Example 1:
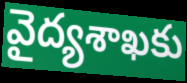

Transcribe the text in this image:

వైద్యశాఖకు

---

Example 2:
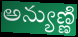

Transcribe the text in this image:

అన్యుణ్ణి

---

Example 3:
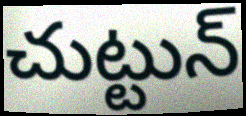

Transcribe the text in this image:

చుట్టున్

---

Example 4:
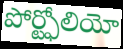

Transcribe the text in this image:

పోర్ట్ఫోలియో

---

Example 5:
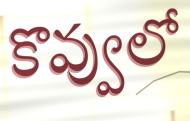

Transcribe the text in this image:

కొవ్వులో